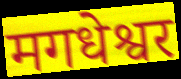
मगधेश्वर